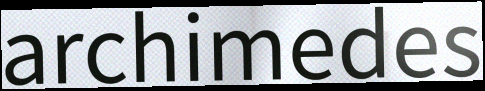
archimedes